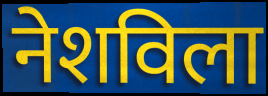
नेशविला